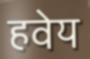
हवेय